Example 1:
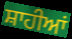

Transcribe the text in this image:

ਸ਼ਾਹੀਆਂ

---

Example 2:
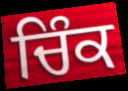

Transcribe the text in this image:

ਚਿੰਕ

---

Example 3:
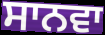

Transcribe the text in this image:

ਸਾਨਵਾ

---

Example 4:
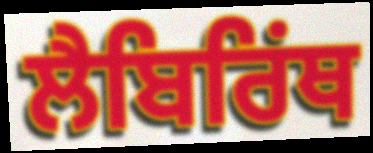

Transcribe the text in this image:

ਲੈਬਿਰਿਂਥ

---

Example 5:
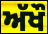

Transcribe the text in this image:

ਅੱਖੌ